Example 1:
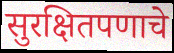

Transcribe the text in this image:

सुरक्षितपणाचे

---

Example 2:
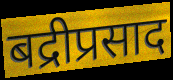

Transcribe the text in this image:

बद्रीप्रसाद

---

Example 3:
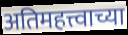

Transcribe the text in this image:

अतिमहत्त्वाच्या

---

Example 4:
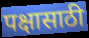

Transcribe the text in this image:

पक्षासाठी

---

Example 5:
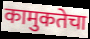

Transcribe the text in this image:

कामुकतेचा